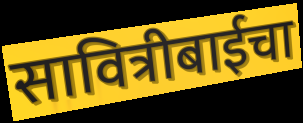
सावित्रीबाईचा